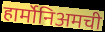
हार्मोनिअमची